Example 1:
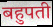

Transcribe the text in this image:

बहुपती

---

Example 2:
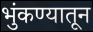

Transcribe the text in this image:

भुंकण्यातून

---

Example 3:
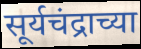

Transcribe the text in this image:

सूर्यचंद्राच्या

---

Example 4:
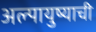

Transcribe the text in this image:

अल्पायुष्याची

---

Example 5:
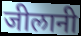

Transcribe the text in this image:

जीलानी